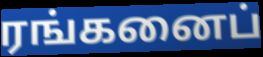
ரங்கனைப்